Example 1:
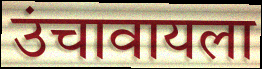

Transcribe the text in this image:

उंचावायला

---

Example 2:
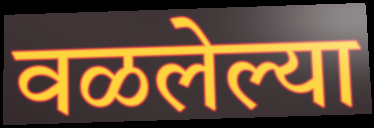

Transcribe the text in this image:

वळलेल्या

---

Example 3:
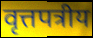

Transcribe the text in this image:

वृत्तपत्रीय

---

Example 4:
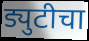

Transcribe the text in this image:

ड्युटीचा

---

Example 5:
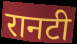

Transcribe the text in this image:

रानटी